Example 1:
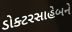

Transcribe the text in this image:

ડોક્ટરસાહેબને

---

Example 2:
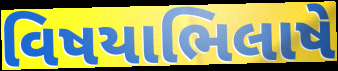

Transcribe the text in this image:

વિષયાભિલાષે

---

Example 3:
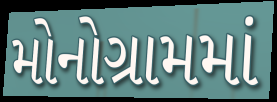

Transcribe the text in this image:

મોનોગ્રામમાં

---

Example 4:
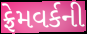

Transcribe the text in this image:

ફ્રેમવર્કની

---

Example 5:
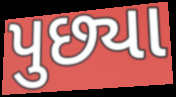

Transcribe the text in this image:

પુછ્યા